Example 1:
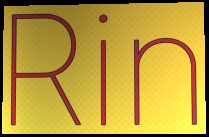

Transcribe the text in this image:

Rin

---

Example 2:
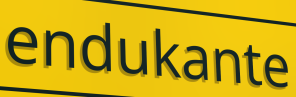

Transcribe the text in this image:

endukante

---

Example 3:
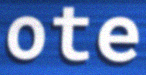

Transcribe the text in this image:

ote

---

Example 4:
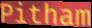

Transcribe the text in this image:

Pitham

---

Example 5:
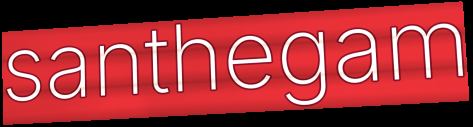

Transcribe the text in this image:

santhegam